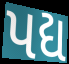
પદ્ય